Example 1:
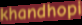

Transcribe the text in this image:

khandhopi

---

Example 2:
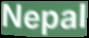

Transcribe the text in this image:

Nepal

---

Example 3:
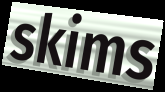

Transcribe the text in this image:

skims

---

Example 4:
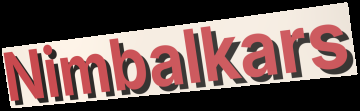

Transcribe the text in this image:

Nimbalkars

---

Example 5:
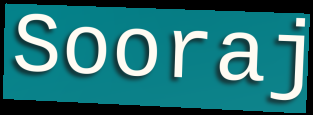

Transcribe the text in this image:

Sooraj